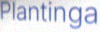
Plantinga